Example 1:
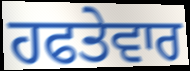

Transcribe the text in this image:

ਹਫਤੇਵਾਰ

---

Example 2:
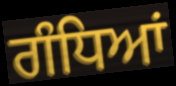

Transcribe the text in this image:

ਗੰਧਿਆਂ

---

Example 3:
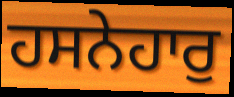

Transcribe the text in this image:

ਹਸਨੇਹਾਰੁ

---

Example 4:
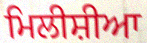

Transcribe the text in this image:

ਮਿਲੀਸ਼ੀਆ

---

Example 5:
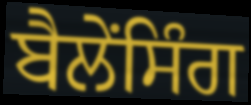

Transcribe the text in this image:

ਬੈਲੇਂਸਿੰਗ